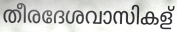
തീരദേശവാസികള്